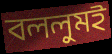
বললুমই